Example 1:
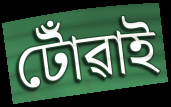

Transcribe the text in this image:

টোঁৱাই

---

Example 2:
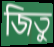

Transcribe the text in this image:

জিতু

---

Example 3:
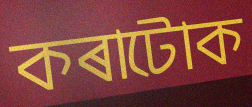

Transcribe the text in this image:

কৰাটোক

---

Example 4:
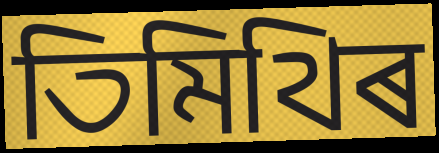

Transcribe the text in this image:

তিমিথিৰ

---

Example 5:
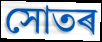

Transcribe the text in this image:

সোতৰ